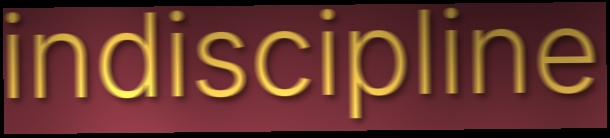
indiscipline